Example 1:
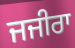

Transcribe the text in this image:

ਜਜੀਰਾ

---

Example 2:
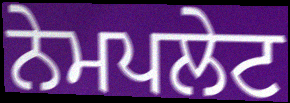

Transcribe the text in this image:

ਨੇਮਪਲੇਟ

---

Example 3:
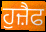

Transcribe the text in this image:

ਹੁਜ਼ੈਫ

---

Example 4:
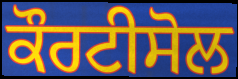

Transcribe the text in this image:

ਕੌਰਟੀਸੋਲ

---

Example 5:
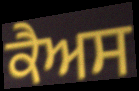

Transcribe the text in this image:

ਕੈਅਸ